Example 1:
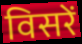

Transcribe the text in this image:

विसरें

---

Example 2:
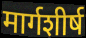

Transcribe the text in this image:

मार्गशीर्ष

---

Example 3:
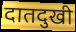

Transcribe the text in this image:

दातदुखी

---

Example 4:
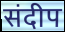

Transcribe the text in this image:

संदीप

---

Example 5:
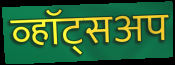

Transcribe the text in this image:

व्हॉट्सअप